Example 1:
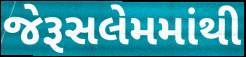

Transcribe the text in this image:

જેરૂસલેમમાંથી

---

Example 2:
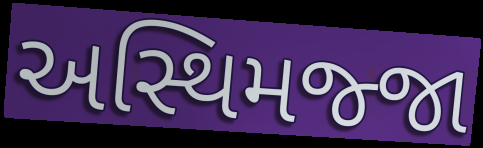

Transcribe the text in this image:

અસ્થિમજ્જા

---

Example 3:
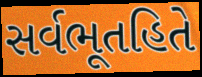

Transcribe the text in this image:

સર્વભૂતહિતે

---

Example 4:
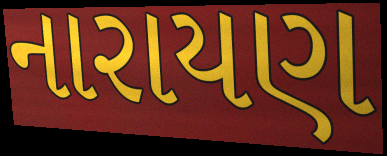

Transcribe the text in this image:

નારાયણ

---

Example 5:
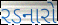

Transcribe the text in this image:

રડનારો